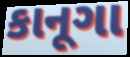
કાનૂગા